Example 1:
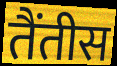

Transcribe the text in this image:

तैंतीस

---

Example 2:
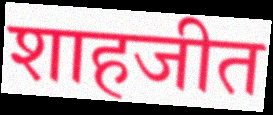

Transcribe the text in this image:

शाहजीत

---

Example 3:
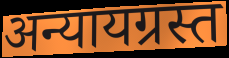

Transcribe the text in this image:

अन्यायग्रस्त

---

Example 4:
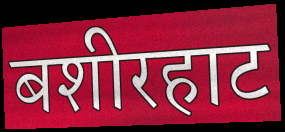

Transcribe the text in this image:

बशीरहाट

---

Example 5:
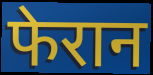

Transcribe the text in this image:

फेरान